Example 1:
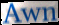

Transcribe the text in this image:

Awn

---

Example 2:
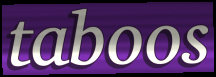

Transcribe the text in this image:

taboos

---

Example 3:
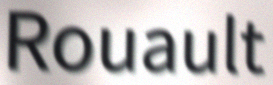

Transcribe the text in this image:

Rouault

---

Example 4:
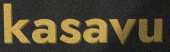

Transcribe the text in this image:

kasavu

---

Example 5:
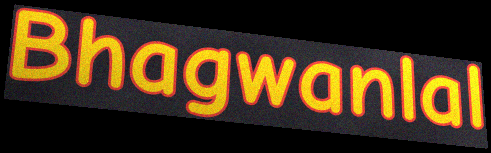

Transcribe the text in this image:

Bhagwanlal